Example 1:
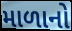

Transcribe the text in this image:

માળાનો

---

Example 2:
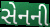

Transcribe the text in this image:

સેનની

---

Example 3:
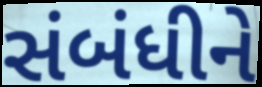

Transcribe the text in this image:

સંબંધીને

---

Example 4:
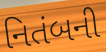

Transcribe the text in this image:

નિતંબની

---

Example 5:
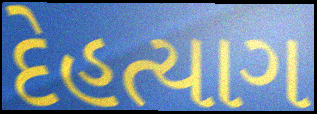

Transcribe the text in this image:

દેહત્યાગ